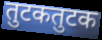
तुटकतुटक